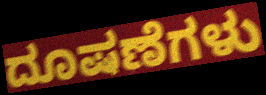
ದೂಷಣೆಗಳು